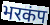
भरकंप